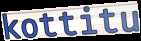
kottitu